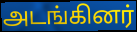
அடங்கினர்